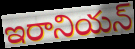
ఇరానియన్